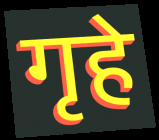
गृहे